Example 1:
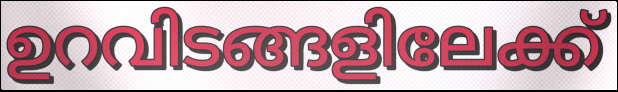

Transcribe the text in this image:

ഉറവിടങ്ങളിലേക്ക്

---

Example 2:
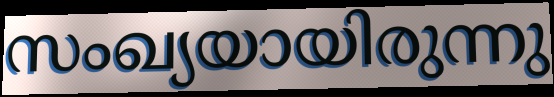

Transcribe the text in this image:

സംഖ്യയായിരുന്നു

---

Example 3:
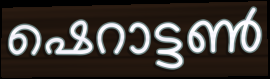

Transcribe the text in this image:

ഷെറാട്ടൺ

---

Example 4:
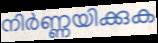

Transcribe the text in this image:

നിർണ്ണയിക്കുക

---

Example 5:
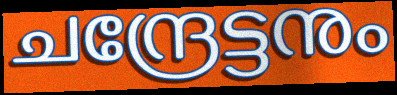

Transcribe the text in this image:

ചന്ദ്രേട്ടനും